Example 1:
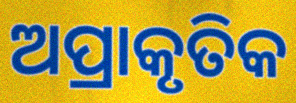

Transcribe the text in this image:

ଅପ୍ରାକୃତିକ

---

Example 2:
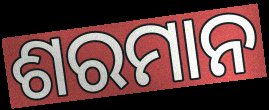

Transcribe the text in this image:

ଶରମାନ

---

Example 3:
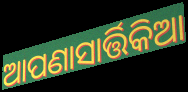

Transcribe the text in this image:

ଆପଣାସାର୍ତ୍ତିକିଆ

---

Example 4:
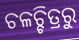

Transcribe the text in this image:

ଚଳଚ୍ଚିତ୍ରରୁ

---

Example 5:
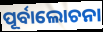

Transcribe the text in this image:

ପୂର୍ବାଲୋଚନା